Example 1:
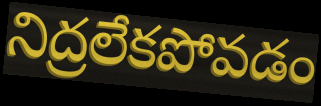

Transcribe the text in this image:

నిద్రలేకపోవడం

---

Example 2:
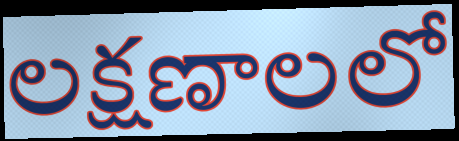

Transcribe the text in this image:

లక్షణాలలో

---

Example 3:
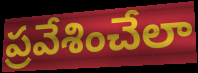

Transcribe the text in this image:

ప్రవేశించేలా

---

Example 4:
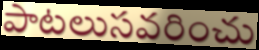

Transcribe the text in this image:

పాటలుసవరించు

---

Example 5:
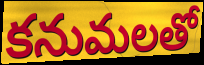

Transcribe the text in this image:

కనుమలతో